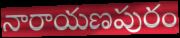
నారాయణపురం